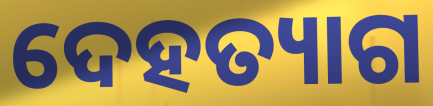
ଦେହତ୍ୟାଗ